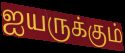
ஐயருக்கும்